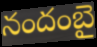
నందంబై